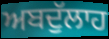
ਅਬਦੁੱਲਾਹ